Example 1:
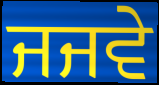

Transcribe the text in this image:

ਜਜਵੇ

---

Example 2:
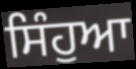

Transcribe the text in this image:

ਸਿੰਹੁਆ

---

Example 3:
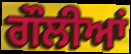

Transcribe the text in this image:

ਗੌਲੀਆਂ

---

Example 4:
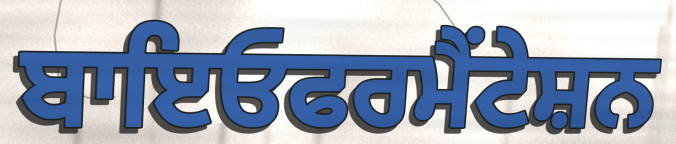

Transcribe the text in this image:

ਬਾਇਓਫਰਮੈਂਟੇਸ਼ਨ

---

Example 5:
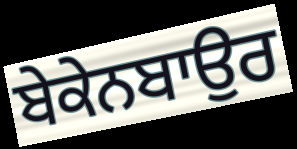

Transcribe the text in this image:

ਬੇਕੇਨਬਾਉਰ